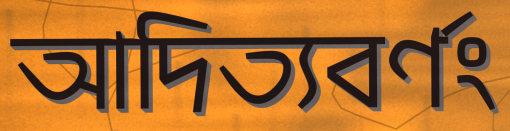
আদিত্যবর্ণং